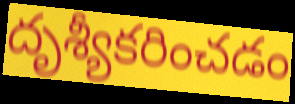
దృశ్యీకరించడం